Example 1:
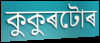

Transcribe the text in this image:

কুকুৰটোৰ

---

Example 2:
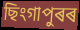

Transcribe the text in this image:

ছিংগাপুৰৰ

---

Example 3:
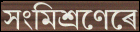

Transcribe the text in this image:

সংমিশ্ৰণেৰে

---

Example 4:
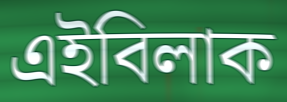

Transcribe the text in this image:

এইবিলাক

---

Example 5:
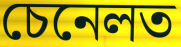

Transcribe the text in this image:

চেনেলত